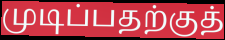
முடிப்பதற்குத்